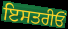
ਇਸਤਰੀਓਂ